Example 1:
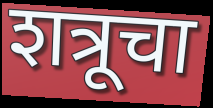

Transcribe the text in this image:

शत्रूचा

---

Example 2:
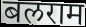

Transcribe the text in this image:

बलराम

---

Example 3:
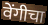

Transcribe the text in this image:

वेंगीचा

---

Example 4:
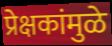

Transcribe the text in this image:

प्रेक्षकांमुळे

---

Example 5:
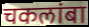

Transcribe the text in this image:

चकलांबा